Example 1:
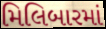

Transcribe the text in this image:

મિલિબારમાં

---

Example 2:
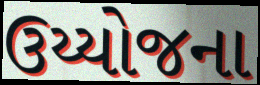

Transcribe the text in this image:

ઉય્યોજના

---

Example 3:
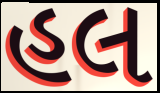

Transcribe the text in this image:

હલ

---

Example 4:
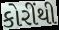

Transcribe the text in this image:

કોરીંથી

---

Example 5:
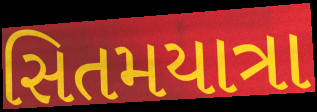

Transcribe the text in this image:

સિતમયાત્રા